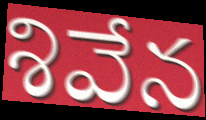
శివేన